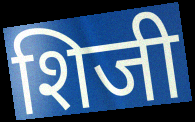
शिजी